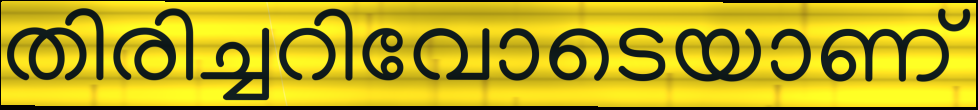
തിരിച്ചറിവോടെയാണ്